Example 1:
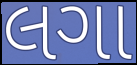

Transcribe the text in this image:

લગા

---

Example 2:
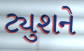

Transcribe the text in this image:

ટ્યુશને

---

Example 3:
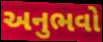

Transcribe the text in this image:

અનુભવો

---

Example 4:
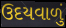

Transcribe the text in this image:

ઉદયવાળું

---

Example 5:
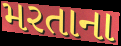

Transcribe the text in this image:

મરતાના